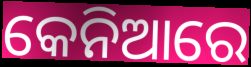
କେନିଆରେ